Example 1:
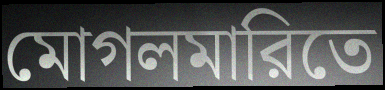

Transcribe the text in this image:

মোগলমারিতে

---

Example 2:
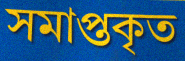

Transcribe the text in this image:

সমাপ্তকৃত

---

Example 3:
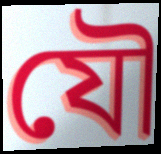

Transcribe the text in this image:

যৌ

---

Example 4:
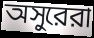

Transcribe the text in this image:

অসুরেরা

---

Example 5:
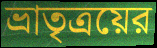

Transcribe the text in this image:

ভ্রাতৃত্রয়ের